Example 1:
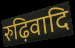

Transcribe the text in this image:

रुढ़िवादि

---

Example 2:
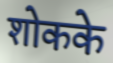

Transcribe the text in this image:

शोकके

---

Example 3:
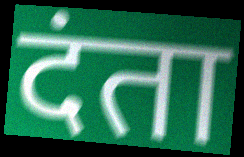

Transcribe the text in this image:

दंता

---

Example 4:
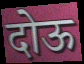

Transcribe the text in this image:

दोऊ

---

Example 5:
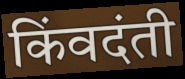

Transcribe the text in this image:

किंवदंती